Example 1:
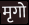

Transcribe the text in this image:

मृगो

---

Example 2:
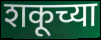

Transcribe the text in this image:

शकूच्या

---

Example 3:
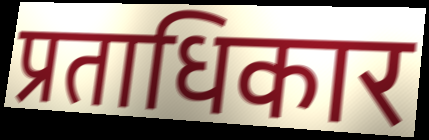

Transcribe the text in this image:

प्रताधिकार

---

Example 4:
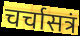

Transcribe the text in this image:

चर्चासत्रं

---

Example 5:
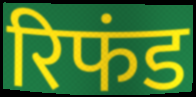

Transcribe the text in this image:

रिफंड